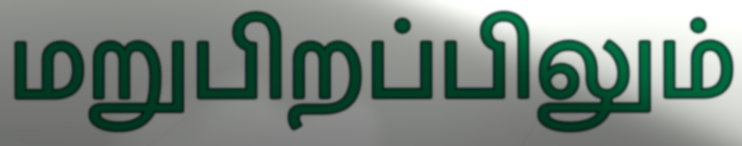
மறுபிறப்பிலும்